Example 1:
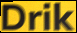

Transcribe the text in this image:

Drik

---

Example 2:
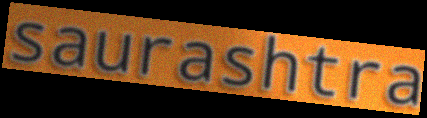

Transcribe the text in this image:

saurashtra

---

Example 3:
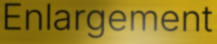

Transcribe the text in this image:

Enlargement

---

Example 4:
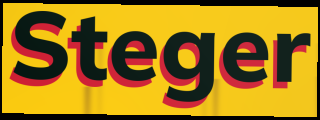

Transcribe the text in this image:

Steger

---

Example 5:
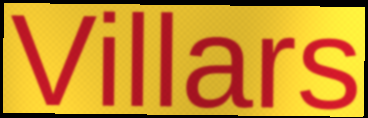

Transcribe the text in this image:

Villars